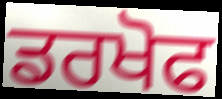
ਡਰਖੋਫ